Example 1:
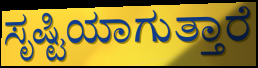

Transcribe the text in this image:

ಸೃಷ್ಟಿಯಾಗುತ್ತಾರೆ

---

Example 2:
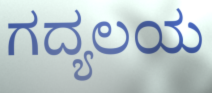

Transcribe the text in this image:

ಗದ್ಯಲಯ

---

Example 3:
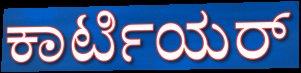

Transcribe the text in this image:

ಕಾರ್ಟಿಯರ್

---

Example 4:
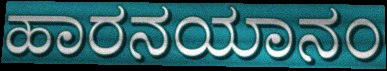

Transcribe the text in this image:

ಹಾರನಯಾನಂ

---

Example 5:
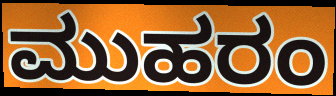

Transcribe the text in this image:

ಮುಹರಂ